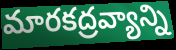
మారకద్రవ్యాన్ని